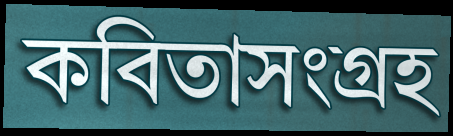
কবিতাসংগ্রহ